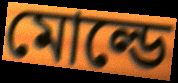
মোল্ডে